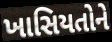
ખાસિયતોને